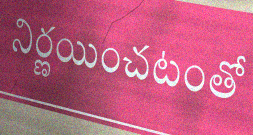
నిర్ణయించటంతో